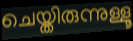
ചെയ്തിരുന്നുള്ളൂ